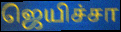
ஜெயிச்சா